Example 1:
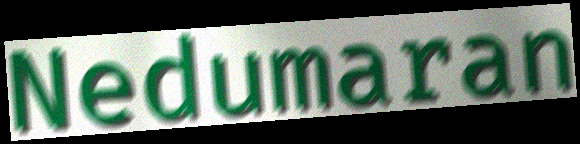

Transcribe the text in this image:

Nedumaran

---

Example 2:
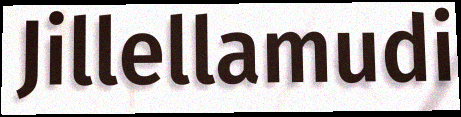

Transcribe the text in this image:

Jillellamudi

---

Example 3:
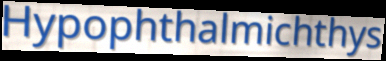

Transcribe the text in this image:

Hypophthalmichthys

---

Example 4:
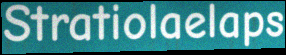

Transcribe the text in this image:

Stratiolaelaps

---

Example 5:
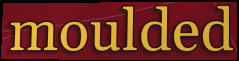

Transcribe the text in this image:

moulded